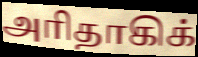
அரிதாகிக்